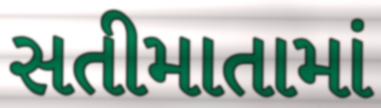
સતીમાતામાં